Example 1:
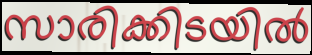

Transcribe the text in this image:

സാരിക്കിടയിൽ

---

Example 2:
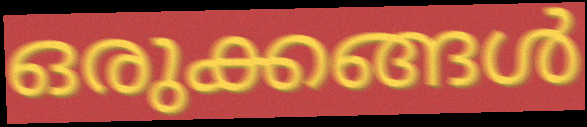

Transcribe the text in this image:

ഒരുക്കങ്ങൾ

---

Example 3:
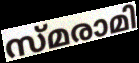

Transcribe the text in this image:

സ്മരാമി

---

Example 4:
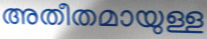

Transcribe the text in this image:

അതീതമായുള്ള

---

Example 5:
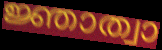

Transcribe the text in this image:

ജ്ഞാത്വാ